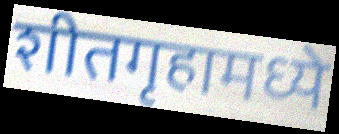
शीतगृहामध्ये